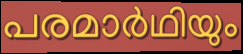
പരമാർഥിയും